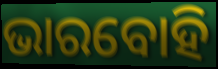
ଭାରବୋହି